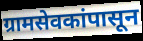
ग्रामसेवकांपासून